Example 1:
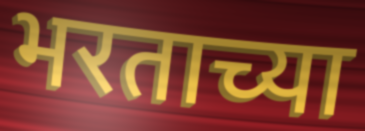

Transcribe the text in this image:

भरताच्या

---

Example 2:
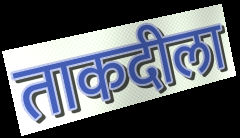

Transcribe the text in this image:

ताकदीला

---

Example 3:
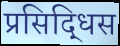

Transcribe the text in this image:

प्रसिद्धिस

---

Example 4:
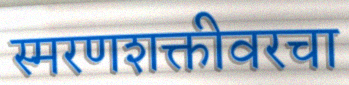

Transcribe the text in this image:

स्मरणशक्तीवरचा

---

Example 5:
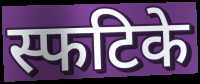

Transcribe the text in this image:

स्फटिके